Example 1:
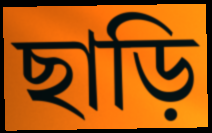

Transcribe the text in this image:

ছাড়ি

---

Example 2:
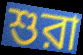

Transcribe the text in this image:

শুরা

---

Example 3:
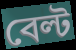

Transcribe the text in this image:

বেল্ট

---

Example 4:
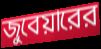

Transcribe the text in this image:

জুবেয়ারের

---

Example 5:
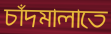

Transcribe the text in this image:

চাঁদমালাতে